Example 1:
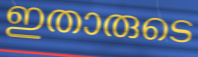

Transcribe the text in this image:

ഇതാരുടെ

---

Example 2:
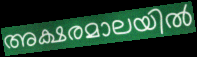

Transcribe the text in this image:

അക്ഷരമാലയിൽ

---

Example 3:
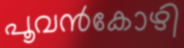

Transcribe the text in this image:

പൂവൻകോഴി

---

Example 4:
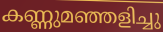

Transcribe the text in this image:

കണ്ണുമഞ്ഞളിച്ചു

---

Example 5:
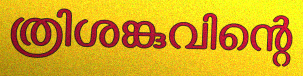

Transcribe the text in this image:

ത്രിശങ്കുവിന്റെ